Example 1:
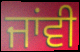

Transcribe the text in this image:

ਜਾਂਵੀ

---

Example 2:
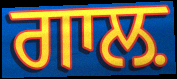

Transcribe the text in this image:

ਗਾਲ਼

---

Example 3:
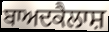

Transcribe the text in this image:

ਬਾਅਦਕੈਲਾਸ਼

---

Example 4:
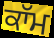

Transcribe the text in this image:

ਕਾੱਮ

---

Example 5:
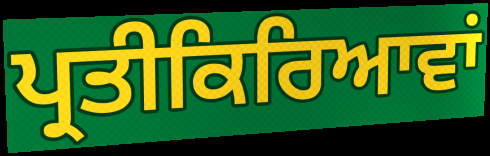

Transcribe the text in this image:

ਪ੍ਰਤੀਕਿਰਿਆਵਾਂ